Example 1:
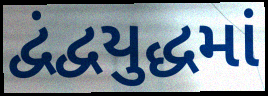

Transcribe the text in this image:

દ્વંદ્વયુદ્ધમાં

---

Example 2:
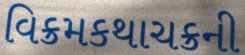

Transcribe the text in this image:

વિક્રમકથાચક્રની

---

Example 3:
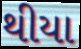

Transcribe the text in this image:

થીયા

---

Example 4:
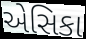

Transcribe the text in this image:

એસિકા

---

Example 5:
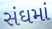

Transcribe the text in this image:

સંઘમાં